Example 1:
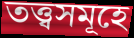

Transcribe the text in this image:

তত্ত্বসমূহে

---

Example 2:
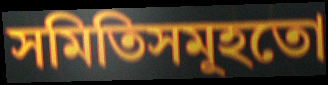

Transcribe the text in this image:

সমিতিসমূহতো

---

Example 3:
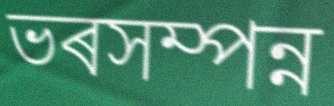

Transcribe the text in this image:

ভৰসম্পন্ন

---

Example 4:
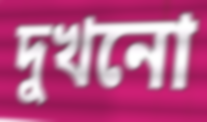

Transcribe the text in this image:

দুখনো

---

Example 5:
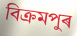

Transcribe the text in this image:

বিক্ৰমপুৰ